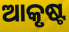
ଆକୃଷ୍ଟ